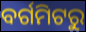
ବର୍ଗମିଟରୁ